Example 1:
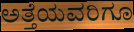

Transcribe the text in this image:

ಅತ್ತೆಯವರಿಗೂ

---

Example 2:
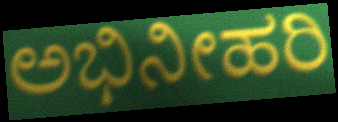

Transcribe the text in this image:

ಅಭಿನೀಹರಿ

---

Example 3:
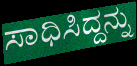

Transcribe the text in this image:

ಸಾಧಿಸಿದ್ದನ್ನು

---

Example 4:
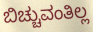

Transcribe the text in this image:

ಬಿಚ್ಚುವಂತಿಲ್ಲ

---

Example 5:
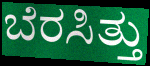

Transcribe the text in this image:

ಬೆರಸಿತ್ತು